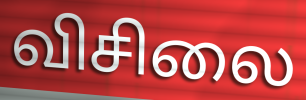
விசிலை